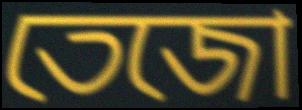
তেজো